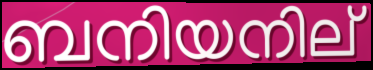
ബനിയനില്